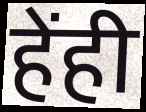
हेंही